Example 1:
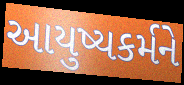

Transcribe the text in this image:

આયુષ્યકર્મને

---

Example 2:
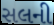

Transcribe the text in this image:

સલની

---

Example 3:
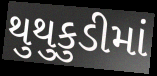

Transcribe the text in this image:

થુથુકુડીમાં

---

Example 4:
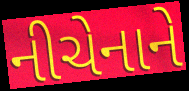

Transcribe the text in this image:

નીચેનાને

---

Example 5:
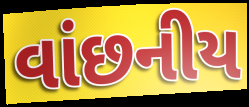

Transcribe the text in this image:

વાંછનીય